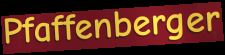
Pfaffenberger